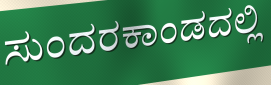
ಸುಂದರಕಾಂಡದಲ್ಲಿ